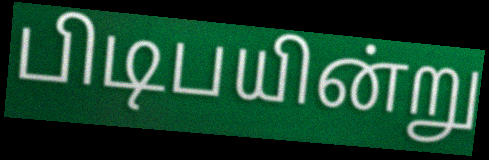
பிடிபயின்று